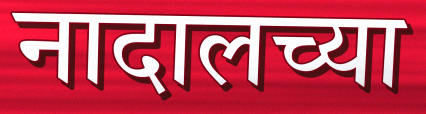
नादालच्या